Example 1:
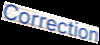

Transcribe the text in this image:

Correction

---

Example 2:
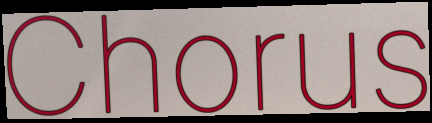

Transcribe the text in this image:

Chorus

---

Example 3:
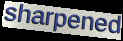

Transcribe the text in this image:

sharpened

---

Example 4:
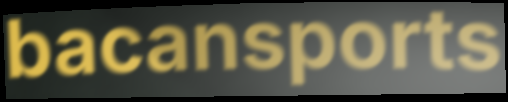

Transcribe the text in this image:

bacansports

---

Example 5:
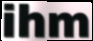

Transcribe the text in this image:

ihm